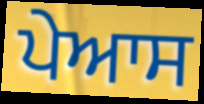
ਪੇਆਸ